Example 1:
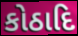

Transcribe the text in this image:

કોઠાદિ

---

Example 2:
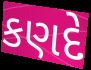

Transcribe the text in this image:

કણદે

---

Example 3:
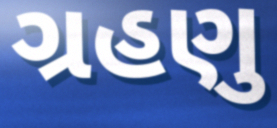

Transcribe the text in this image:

ગ્રહણુ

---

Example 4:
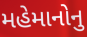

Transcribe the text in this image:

મહેમાનોનુ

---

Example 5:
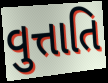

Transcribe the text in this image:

વુત્તાતિ